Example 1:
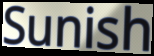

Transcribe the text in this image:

Sunish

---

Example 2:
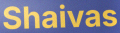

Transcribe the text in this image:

Shaivas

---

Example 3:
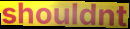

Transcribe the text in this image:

shouldnt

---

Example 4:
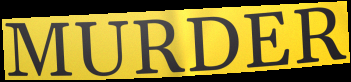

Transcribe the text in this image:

MURDER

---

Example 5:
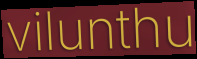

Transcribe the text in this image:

vilunthu